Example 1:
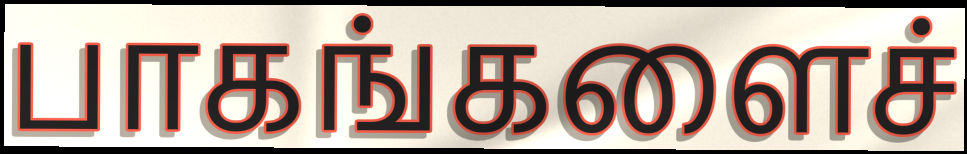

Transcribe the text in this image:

பாகங்களைச்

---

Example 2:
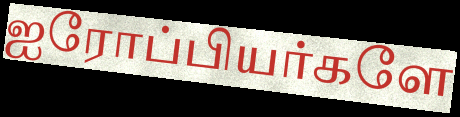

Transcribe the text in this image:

ஐரோப்பியர்களே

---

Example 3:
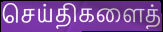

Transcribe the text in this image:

செய்திகளைத்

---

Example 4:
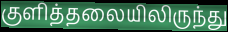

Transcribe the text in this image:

குளித்தலையிலிருந்து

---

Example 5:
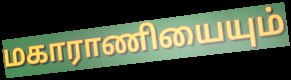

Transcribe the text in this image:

மகாராணியையும்